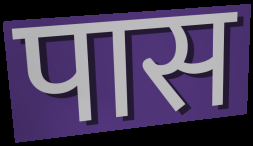
पास